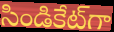
సిండికేట్‌గా